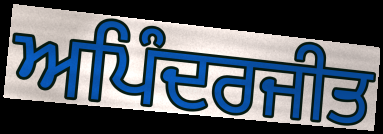
ਅਪਿੰਦਰਜੀਤ